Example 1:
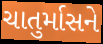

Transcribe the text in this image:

ચાતુર્માસને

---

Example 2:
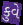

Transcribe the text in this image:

કુવે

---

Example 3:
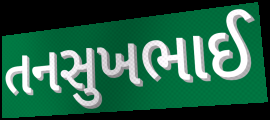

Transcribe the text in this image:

તનસુખભાઈ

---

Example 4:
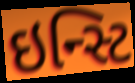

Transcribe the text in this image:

ઇન્સ્ટિ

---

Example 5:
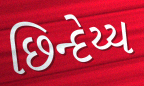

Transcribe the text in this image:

છિન્દેય્ય